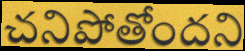
చనిపోతోందని